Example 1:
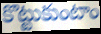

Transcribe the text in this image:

కొట్టుకుంటాం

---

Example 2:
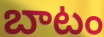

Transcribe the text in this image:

బాటం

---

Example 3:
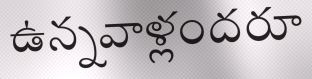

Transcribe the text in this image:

ఉన్నవాళ్లందరూ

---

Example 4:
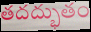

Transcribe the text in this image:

తదద్భుతం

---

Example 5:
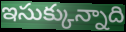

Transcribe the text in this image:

ఇసుక్కున్నాది